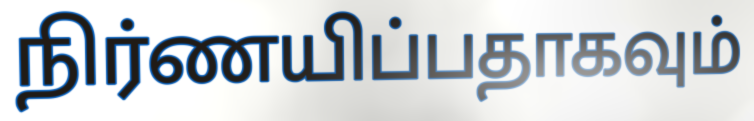
நிர்ணயிப்பதாகவும்